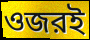
ওজরই